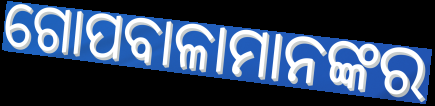
ଗୋପବାଳାମାନଙ୍କର